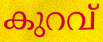
കുറവ്